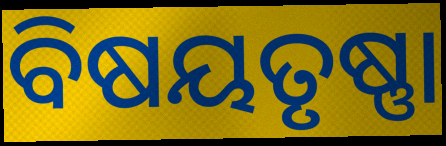
ବିଷୟତୃଷ୍ଣା